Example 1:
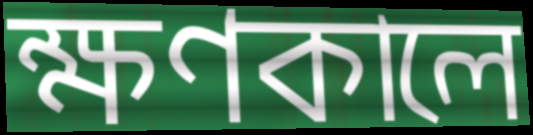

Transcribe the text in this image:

ক্ষণকালে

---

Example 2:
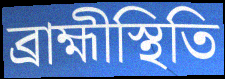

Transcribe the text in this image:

ব্রাহ্মীস্থিতি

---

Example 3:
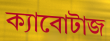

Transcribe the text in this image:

ক্যাবোটাজ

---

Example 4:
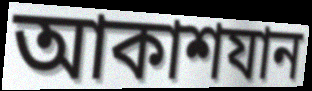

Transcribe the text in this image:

আকাশযান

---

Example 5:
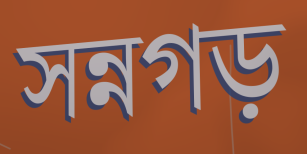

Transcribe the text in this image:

সন্নগড়